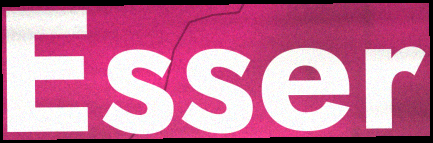
Esser